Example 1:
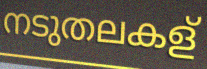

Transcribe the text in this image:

നടുതലകള്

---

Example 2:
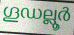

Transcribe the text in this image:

ഗൂഡല്ലൂർ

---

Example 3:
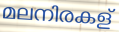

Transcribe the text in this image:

മലനിരകള്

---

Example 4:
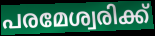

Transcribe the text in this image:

പരമേശ്വരിക്ക്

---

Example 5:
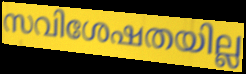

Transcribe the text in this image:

സവിശേഷതയില്ല